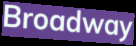
Broadway